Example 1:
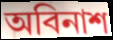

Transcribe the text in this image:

অবিনাশ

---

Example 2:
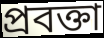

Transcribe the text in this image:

প্ৰবক্তা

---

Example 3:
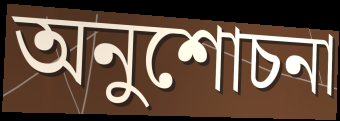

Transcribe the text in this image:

অনুশোচনা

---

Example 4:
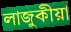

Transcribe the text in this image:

লাজুকীয়া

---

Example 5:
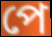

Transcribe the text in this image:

পে